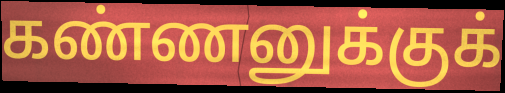
கண்ணனுக்குக்